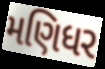
મણિધર